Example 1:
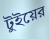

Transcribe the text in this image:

টুইয়ের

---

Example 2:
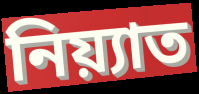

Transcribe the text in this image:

নিয়্যাত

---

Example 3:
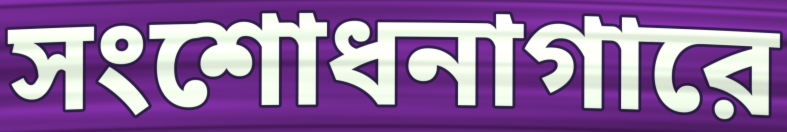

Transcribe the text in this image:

সংশোধনাগারে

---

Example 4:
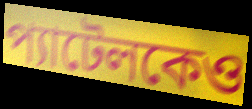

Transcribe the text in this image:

প্যাটেলকেও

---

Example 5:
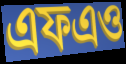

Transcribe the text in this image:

এফএও